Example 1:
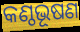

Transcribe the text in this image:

କଣ୍ଠଭୂଷଣ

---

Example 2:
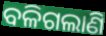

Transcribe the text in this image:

ବଳିଗଲାଣି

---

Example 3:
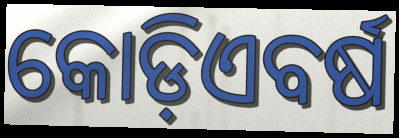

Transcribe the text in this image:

କୋଡ଼ିଏବର୍ଷ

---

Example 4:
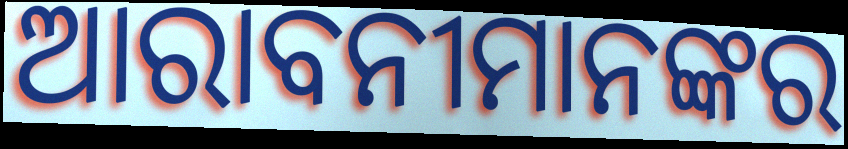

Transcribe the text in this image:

ଆରାବନୀମାନଙ୍କର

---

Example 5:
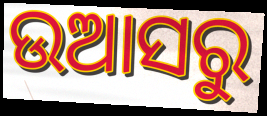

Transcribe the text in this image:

ଉଆସରୁ